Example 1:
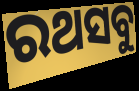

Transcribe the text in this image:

ରଥସବୁ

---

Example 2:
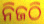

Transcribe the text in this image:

ନିଜଠି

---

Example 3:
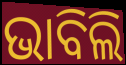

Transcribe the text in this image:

ଭାବିଲି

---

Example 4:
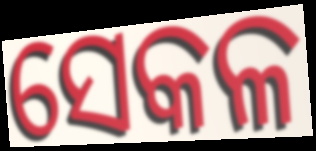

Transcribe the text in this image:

ସେକଳ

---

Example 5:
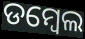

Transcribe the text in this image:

ଡମ୍ୱେଲ